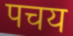
पचय